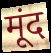
मूंद